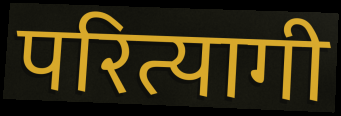
परित्यागी